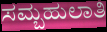
ಸಮ್ಬಹುಲಾತಿ